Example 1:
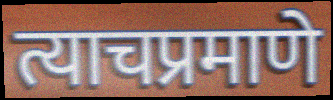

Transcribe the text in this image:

त्याचप्रमाणे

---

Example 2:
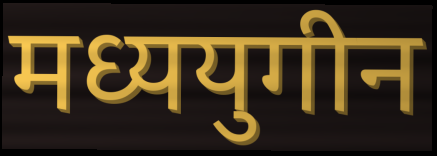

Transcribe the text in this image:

मध्ययुगीन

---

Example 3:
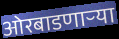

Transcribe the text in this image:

ओरबाडणाऱ्या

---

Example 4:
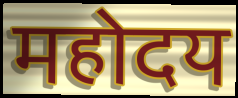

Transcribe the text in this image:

महोदय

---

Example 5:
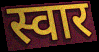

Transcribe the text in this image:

स्वार